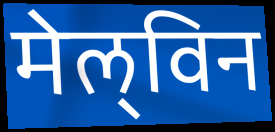
मेल्विन